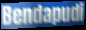
Bendapudi